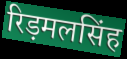
रिड़मलसिंह